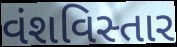
વંશવિસ્તાર